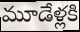
మూడేళ్లకి